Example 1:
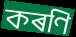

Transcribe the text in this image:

কৰণি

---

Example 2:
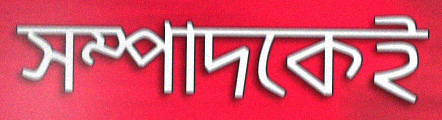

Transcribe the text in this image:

সম্পাদকেই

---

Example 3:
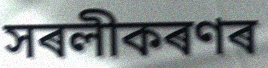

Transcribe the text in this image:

সৰলীকৰণৰ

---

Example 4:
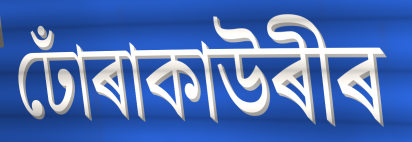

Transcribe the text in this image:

ঢোঁৰাকাউৰীৰ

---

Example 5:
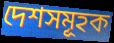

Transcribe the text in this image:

দেশসমূহক